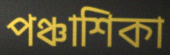
পঞ্চাশিকা